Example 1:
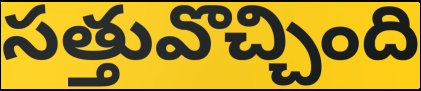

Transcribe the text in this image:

సత్తువొచ్చింది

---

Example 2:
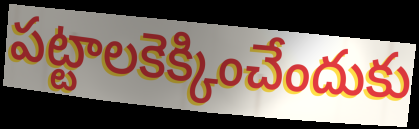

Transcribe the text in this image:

పట్టాలకెక్కించేందుకు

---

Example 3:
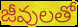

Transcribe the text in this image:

జీవులతో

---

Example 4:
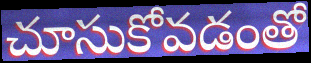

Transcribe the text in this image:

చూసుకోవడంతో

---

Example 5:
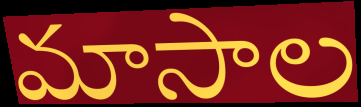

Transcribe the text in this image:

మాసాల